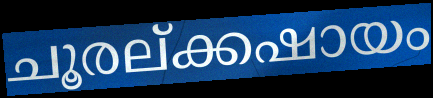
ചൂരല്ക്കഷായം